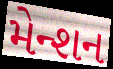
મેન્શન